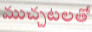
ముచ్చటలతో